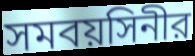
সমবয়সিনীর